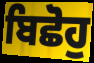
ਬਿਛੋਹੁ